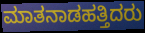
ಮಾತನಾಡಹತ್ತಿದರು